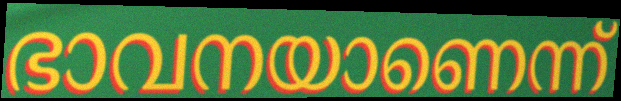
ഭാവനയാണെന്ന്